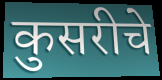
कुसरीचे